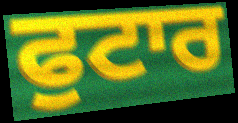
ਫੁਟਾਰ